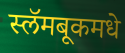
स्लॅमबूकमधे